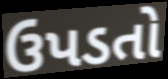
ઉપડતો